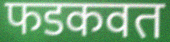
फडकवत